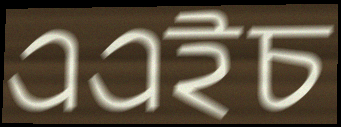
এএইচ